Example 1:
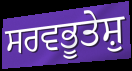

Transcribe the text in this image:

ਸਰਵਭੂਤੇਸ਼ੁ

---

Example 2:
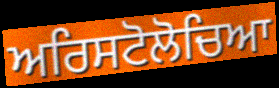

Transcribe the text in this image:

ਅਰਿਸਟੋਲੋਚਿਆ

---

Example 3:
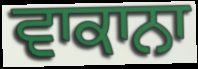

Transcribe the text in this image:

ਵਾਕਾਨਾ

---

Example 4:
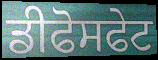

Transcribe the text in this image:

ਡੀਫੋਸਫੇਟ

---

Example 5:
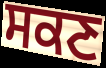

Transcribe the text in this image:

ਸਕਣ